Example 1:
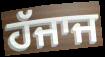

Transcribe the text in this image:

ਹੱਜਾਜ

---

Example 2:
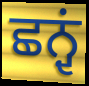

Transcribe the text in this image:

ਛਨ੍ਦਂ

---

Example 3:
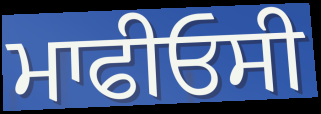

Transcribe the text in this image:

ਮਾਫੀਓਸੀ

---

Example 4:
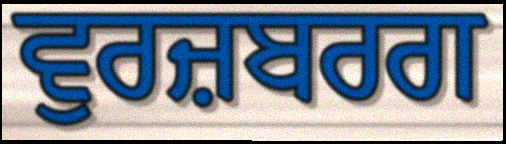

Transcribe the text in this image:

ਵੁਰਜ਼ਬਰਗ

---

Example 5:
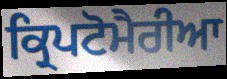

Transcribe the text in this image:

ਕ੍ਰਿਪਟੋਮੈਰੀਆ